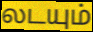
லடயும்